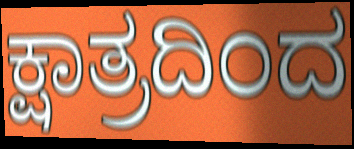
ಕ್ಷಾತ್ರದಿಂದ